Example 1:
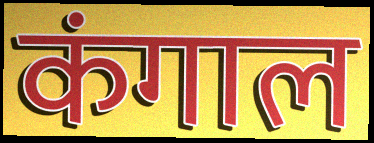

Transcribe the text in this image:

कंगाल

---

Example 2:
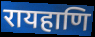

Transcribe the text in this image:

रायहाणि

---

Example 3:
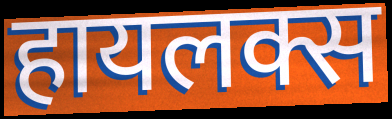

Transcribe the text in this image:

हायलक्स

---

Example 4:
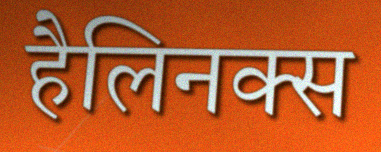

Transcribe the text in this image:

हैलिनक्स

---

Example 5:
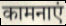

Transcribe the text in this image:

कामनाएं